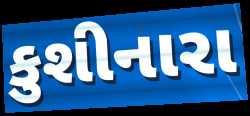
કુશીનારા